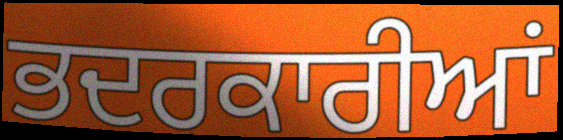
ਭਦਰਕਾਰੀਆਂ